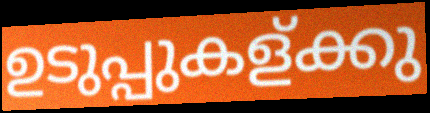
ഉടുപ്പുകള്ക്കു